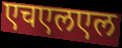
एचएलएल